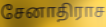
சேனாதிராச